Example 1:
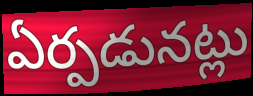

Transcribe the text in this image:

ఏర్పడునట్లు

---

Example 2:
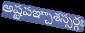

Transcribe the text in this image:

అష్టపఞ్చాశస్సర్గః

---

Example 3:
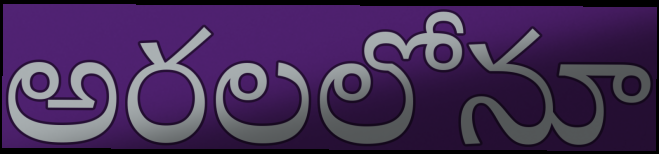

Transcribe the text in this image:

అరలలోనూ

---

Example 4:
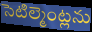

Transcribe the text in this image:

సెటిల్మెంట్లను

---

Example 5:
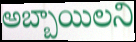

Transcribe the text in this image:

అబ్బాయిలని